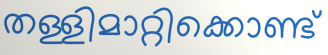
തള്ളിമാറ്റിക്കൊണ്ട്